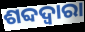
ଶବ୍ଦଦ୍ୱାରା